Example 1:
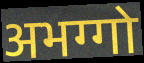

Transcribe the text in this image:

अभग्गो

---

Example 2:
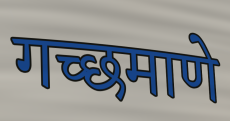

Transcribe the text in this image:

गच्छमाणे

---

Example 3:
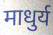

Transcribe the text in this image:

माधुर्य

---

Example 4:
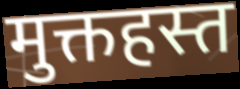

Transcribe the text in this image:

मुक्तहस्त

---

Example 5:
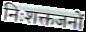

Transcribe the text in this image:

निःशक्तजनों